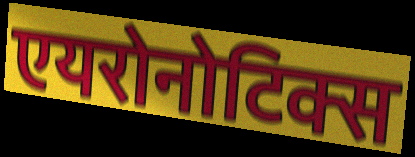
एयरोनोटिक्स